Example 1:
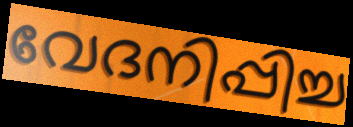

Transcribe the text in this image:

വേദനിപ്പിച്ച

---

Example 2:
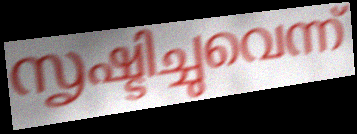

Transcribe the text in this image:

സൃഷ്ടിച്ചുവെന്ന്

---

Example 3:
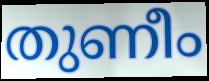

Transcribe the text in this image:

തുണീം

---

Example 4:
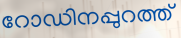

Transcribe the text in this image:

റോഡിനപ്പുറത്ത്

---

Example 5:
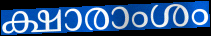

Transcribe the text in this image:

ക്ഷാരാംശം